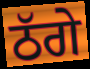
ਠੱਗੇ